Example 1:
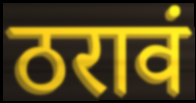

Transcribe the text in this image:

ठरावं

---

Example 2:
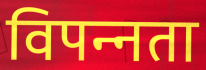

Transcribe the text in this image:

विपन्नता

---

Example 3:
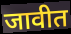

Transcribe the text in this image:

जावीत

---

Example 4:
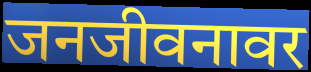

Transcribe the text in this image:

जनजीवनावर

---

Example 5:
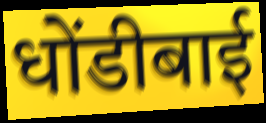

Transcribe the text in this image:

धोंडीबाई